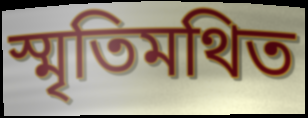
স্মৃতিমথিত